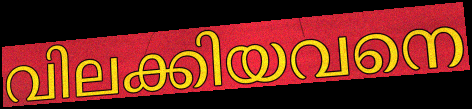
വിലക്കിയവനെ